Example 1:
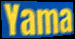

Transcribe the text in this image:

Yama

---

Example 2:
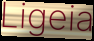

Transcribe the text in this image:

Ligeia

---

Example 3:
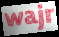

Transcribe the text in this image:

wajr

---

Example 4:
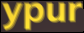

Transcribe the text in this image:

ypur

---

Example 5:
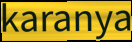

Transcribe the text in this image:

karanya